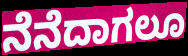
ನೆನೆದಾಗಲೂ